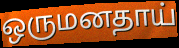
ஒருமனதாய்